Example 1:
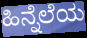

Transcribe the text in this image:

ಹಿನ್ನೆಲೆಯ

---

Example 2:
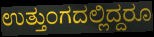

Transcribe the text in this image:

ಉತ್ತುಂಗದಲ್ಲಿದ್ದರೂ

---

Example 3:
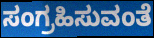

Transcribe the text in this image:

ಸಂಗ್ರಹಿಸುವಂತೆ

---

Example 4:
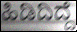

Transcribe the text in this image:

ಹಿಡಿದಿದ್ದೆ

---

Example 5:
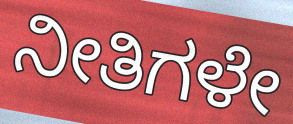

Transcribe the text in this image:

ನೀತಿಗಳೇ